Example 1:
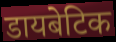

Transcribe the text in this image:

डायबेटिक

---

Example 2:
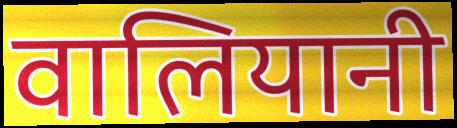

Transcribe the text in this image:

वालियानी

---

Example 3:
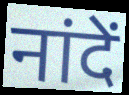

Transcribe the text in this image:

नांदें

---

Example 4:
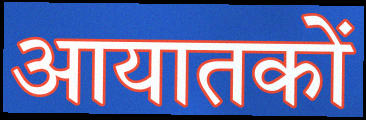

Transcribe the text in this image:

आयातकों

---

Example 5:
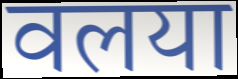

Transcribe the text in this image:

वलया